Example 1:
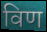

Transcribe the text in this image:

विण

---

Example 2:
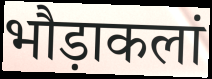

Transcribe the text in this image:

भौड़ाकलां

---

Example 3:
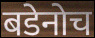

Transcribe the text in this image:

बडेनोच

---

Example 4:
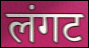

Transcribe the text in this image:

लंगट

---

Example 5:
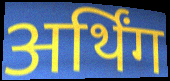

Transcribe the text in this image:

अर्थिंग